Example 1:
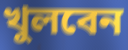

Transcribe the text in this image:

খুলবেন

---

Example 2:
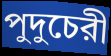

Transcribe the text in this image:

পুদুচেরী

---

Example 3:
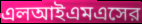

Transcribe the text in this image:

এলআইএমএসের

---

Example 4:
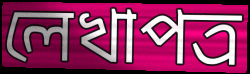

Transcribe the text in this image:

লেখাপত্র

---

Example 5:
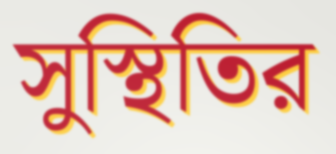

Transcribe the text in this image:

সুস্থিতির